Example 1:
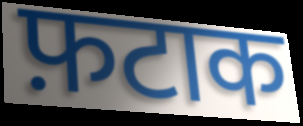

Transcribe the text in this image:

फ़टाक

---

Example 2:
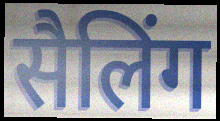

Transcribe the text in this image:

सैलिंग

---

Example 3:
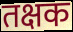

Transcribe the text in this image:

तक्षक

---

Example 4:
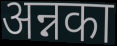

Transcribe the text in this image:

अन्नका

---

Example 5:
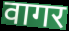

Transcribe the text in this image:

वागर